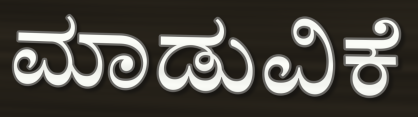
ಮಾಡುವಿಕೆ